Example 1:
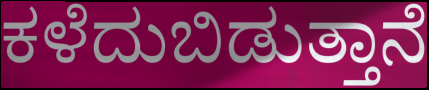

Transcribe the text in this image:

ಕಳೆದುಬಿಡುತ್ತಾನೆ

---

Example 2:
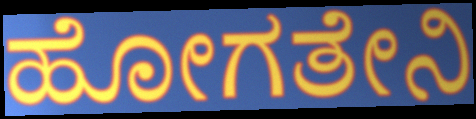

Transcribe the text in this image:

ಹೋಗತೇನಿ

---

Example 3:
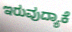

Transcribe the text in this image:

ಇರುವುದ್ಯಾಕೆ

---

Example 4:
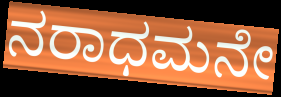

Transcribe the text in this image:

ನರಾಧಮನೇ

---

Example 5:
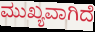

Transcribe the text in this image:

ಮುಖ್ಯವಾಗಿದೆ